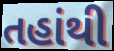
તહાંથી